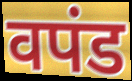
वपंड